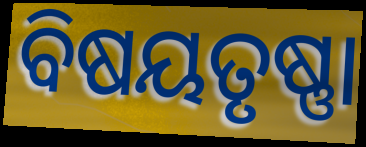
ବିଷୟତୃଷ୍ଣା